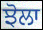
ਝੋਲਾ